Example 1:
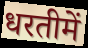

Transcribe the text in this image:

धरतीमें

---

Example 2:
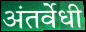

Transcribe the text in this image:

अंतर्वेधी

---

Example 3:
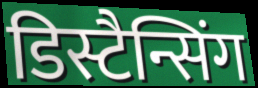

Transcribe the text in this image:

डिस्टैन्सिंग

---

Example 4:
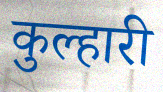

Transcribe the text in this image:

कुल्हारी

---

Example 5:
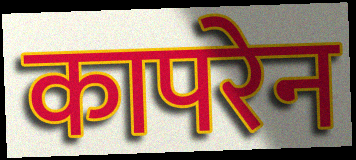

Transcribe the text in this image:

कापरेन